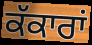
ਕੱਕਾਰਾਂ